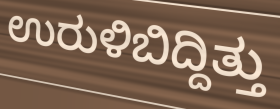
ಉರುಳಿಬಿದ್ದಿತ್ತು